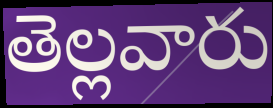
తెల్లవారు